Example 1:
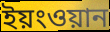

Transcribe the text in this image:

ইয়ংওয়ান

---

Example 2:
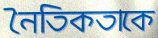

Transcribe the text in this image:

নৈতিকতাকে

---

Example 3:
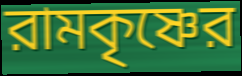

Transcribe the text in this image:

রামকৃষ্ণের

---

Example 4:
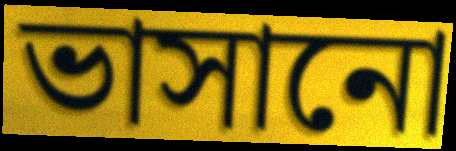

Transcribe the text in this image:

ভাসানো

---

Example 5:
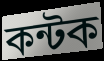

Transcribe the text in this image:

কন্টক